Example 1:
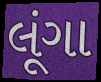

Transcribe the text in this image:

લૂંગા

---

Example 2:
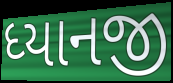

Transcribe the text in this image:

ધ્યાનજી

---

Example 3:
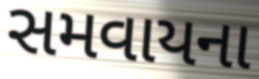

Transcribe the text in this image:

સમવાયના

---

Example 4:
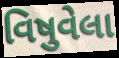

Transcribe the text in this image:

વિષુવેલા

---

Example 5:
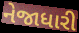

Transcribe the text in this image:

નેજાધારી